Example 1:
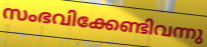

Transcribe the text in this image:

സംഭവിക്കേണ്ടിവന്നു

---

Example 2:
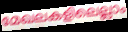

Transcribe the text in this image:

മേഖലകളിലെല്ലാം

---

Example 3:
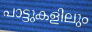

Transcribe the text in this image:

പാട്ടുകളിലും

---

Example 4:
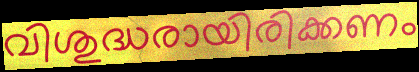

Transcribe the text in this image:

വിശുദ്ധരായിരിക്കണം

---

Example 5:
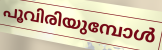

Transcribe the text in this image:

പൂവിരിയുമ്പോൾ